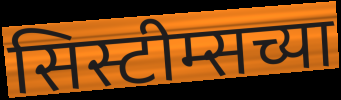
सिस्टीम्सच्या